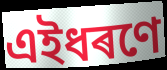
এইধৰণে